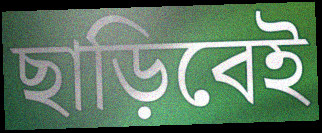
ছাড়িবেই